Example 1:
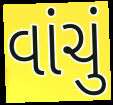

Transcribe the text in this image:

વાંચું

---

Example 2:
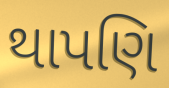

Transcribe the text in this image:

થાપણિ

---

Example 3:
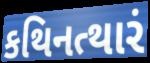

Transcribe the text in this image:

કથિનત્થારં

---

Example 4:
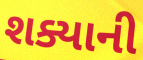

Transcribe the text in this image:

શક્યાની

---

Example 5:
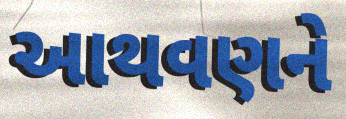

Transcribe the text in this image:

આથવણને